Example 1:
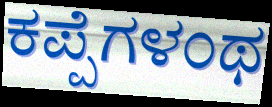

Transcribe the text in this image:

ಕಪ್ಪೆಗಳಂಥ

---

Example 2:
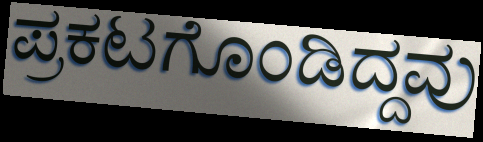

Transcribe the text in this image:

ಪ್ರಕಟಗೊಂಡಿದ್ದವು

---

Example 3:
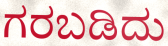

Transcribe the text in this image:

ಗರಬಡಿದು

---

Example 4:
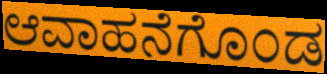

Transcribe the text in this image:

ಆವಾಹನೆಗೊಂಡ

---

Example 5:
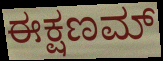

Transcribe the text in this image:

ಈಕ್ಷಣಮ್